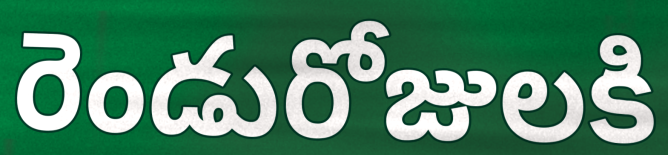
రెండురోజులకి